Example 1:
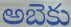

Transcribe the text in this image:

అబెకు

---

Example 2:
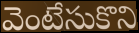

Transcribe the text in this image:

వెంటేసుకొని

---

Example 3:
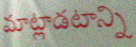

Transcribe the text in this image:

మాట్లాడటాన్ని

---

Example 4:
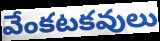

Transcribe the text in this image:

వేంకటకవులు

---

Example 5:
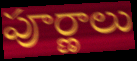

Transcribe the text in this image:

పూర్ణాలు